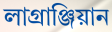
লাগ্ৰাঞ্জিয়ান